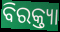
ବିରକ୍ତ୍ୟା